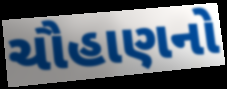
ચૌહાણનો